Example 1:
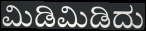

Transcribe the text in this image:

ಮಿಡಿಮಿಡಿದು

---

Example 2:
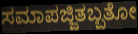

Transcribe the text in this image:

ಸಮಾಪಜ್ಜಿತಬ್ಬತೋ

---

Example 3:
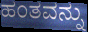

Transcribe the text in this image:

ಹಂತವನ್ನು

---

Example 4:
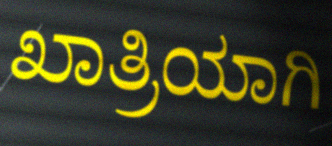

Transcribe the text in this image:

ಖಾತ್ರಿಯಾಗಿ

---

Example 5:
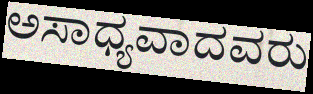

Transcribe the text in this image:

ಅಸಾಧ್ಯವಾದವರು